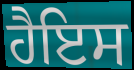
ਹੈਇਸ